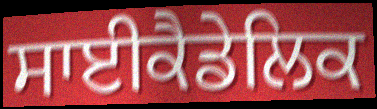
ਸਾਈਕੈਡੇਲਿਕ